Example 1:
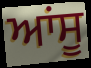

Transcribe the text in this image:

ਆਂਸੂ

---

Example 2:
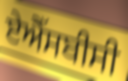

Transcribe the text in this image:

ਏਐੱਸਬੀਸੀ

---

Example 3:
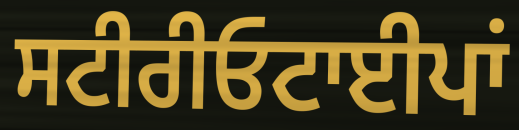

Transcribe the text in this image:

ਸਟੀਰੀਓਟਾਈਪਾਂ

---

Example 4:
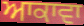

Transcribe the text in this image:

ਆਕਾਵਾ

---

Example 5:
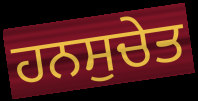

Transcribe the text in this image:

ਹਨਸੁਚੇਤ